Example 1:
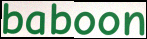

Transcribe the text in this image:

baboon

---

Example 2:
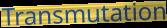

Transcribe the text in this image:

Transmutation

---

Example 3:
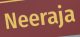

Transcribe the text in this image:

Neeraja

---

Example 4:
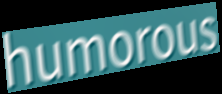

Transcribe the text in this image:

humorous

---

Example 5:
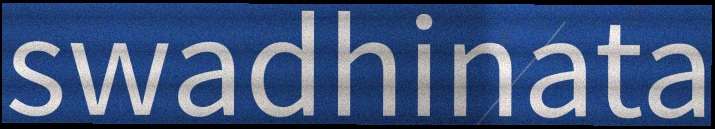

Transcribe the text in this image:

swadhinata